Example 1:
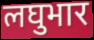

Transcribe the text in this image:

लघुभार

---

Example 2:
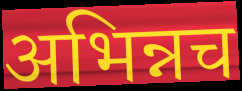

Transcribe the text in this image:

अभिन्नच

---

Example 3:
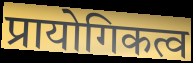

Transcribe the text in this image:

प्रायोगिकत्व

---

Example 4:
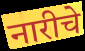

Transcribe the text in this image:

नारीचे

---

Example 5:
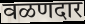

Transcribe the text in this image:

वळणदार